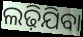
ଲଢ଼ିଯିବା